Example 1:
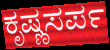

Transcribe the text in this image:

ಕೃಷ್ಣಸರ್ಪ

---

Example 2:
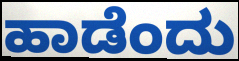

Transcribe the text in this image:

ಹಾಡೆಂದು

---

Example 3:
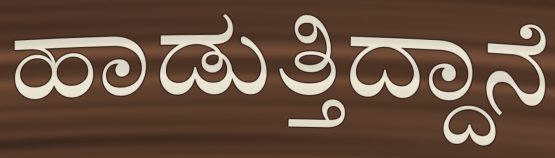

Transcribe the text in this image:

ಹಾಡುತ್ತಿದ್ದಾನೆ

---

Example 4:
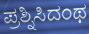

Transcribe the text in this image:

ಪ್ರಶ್ನಿಸಿದಂಥ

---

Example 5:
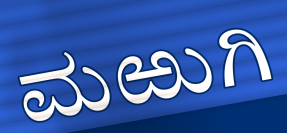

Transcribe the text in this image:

ಮಱುಗಿ